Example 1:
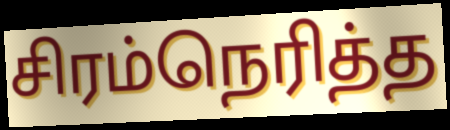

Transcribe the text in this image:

சிரம்நெரித்த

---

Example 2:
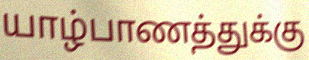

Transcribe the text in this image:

யாழ்பாணத்துக்கு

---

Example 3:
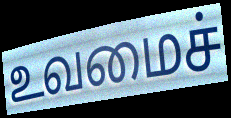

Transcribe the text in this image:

உவமைச்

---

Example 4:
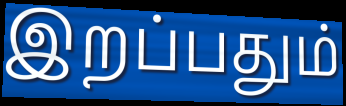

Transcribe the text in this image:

இறப்பதும்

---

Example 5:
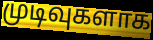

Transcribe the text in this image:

முடிவுகளாக